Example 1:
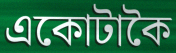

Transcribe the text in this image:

একোটাকৈ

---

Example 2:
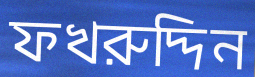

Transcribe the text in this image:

ফখৰুদ্দিন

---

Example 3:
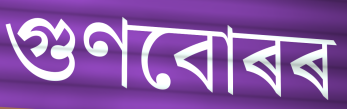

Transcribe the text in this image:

গুণবোৰৰ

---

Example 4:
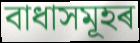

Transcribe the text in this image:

বাধাসমূহৰ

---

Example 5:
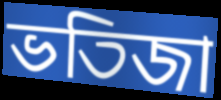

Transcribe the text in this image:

ভতিজা